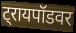
ट्रायपॉडवर